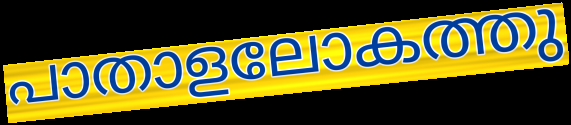
പാതാളലോകത്തു